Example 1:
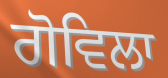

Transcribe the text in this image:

ਗੋਵਿਲਾ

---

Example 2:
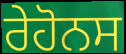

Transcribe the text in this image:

ਰੇਹੋਨਸ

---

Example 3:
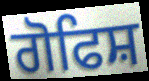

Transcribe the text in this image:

ਗੋਫਿਸ਼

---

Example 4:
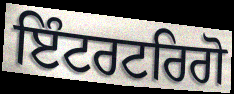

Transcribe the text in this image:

ਇੰਟਰਟਰਿਗੋ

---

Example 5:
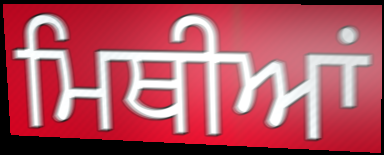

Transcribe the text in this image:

ਮਿਥੀਆਂ